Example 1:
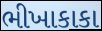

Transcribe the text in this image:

ભીખાકાકા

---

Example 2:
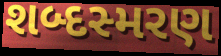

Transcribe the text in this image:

શબ્દસ્મરણ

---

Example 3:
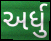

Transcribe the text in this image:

અર્ધુ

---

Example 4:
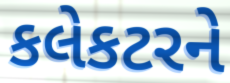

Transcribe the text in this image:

કલેકટરને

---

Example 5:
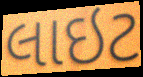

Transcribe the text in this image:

લાઇટ